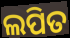
ଲପିତ